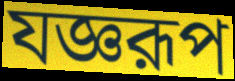
যজ্ঞরূপ